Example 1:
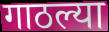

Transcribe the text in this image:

गाठल्या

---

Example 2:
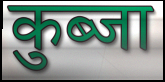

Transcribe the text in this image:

कुब्जा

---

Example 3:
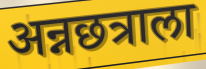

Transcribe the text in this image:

अन्नछत्राला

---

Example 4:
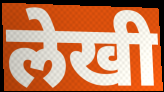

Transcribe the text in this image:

लेखी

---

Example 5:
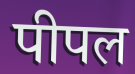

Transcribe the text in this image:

पीपल